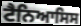
ਟੈਨਿਆਸਿਸ